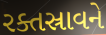
રક્તસ્રાવને